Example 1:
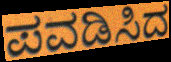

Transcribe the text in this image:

ಪವಡಿಸಿದ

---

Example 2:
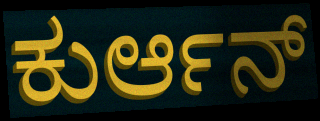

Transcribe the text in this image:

ಕುರ್ಆನ್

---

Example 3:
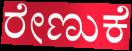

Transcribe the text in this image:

ರೇಣುಕೆ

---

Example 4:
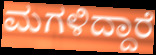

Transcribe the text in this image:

ಮಗಳಿದ್ದಾರೆ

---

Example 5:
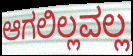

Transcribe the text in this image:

ಆಗಲಿಲ್ಲವಲ್ಲ